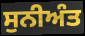
ਸੁਨੀਅੰਤ